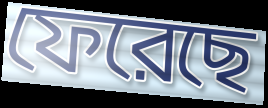
ফেরেছে